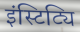
इंस्टिट्यि